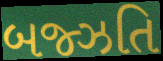
બજ્ઝતિ